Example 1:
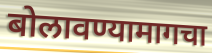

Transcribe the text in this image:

बोलावण्यामागचा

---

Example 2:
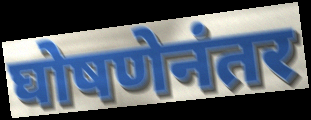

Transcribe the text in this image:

घोषणेनंतर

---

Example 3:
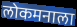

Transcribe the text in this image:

लोकमनाला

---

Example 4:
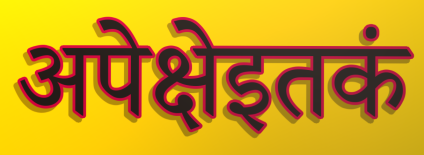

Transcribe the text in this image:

अपेक्षेइतकं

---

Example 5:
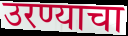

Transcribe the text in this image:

उरण्याचा